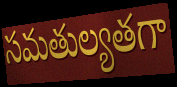
సమతుల్యతగా